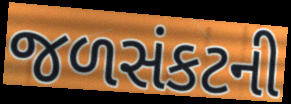
જળસંકટની